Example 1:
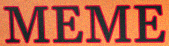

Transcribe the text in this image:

MEME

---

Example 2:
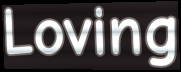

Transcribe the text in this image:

Loving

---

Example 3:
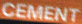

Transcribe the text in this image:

CEMENT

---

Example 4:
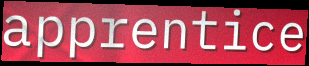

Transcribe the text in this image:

apprentice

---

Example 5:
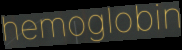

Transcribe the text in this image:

hemoglobin